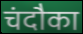
चंदौका